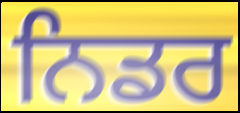
ਨਿਡਰ